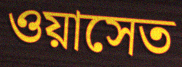
ওয়াসেত